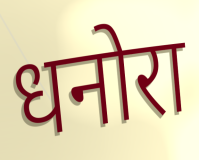
धनोरा